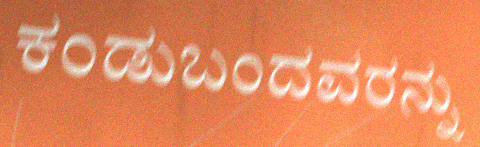
ಕಂಡುಬಂದವರನ್ನು